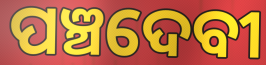
ପଞ୍ଚଦେବୀ